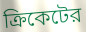
ক্রিকেটের